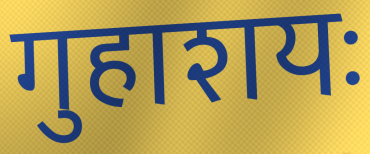
गुहाशयः